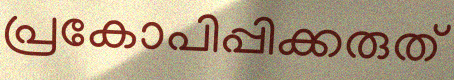
പ്രകോപിപ്പിക്കരുത്